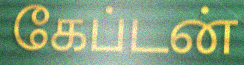
கேப்டன்